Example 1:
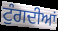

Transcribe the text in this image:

ਟੁੰਗਦੀਆਂ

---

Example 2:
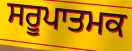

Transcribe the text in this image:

ਸਰੂਪਾਤਮਕ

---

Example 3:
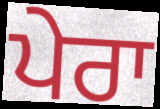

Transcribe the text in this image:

ਪੇਰਾ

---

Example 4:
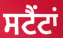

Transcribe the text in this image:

ਸਟੈਂਟਾਂ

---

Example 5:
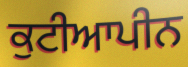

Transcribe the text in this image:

ਕੁਟੀਆਪੀਨ